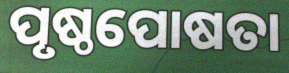
ପୃଷ୍ଠପୋଷତା